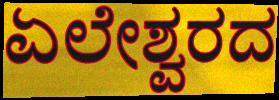
ಏಲೇಶ್ವರದ